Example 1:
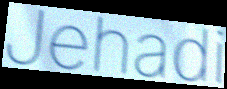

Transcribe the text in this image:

Jehadi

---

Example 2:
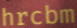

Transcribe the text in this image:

hrcbm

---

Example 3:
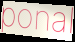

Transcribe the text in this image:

ponal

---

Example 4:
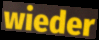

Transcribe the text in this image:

wieder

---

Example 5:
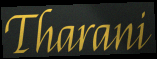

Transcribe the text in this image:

Tharani